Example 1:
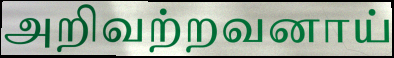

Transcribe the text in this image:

அறிவற்றவனாய்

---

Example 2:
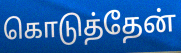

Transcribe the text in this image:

கொடுத்தேன்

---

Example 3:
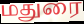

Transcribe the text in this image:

மதுரை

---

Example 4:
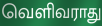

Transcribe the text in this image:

வெளிவராது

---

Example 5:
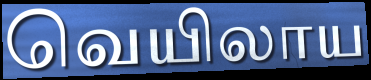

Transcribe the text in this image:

வெயிலாய